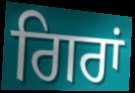
ਗਿਰਾਂ